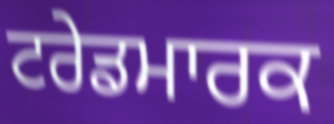
ਟਰੇਡਮਾਰਕ